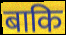
बाकि